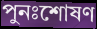
পুনঃশোষণ